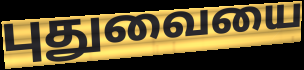
புதுவையை